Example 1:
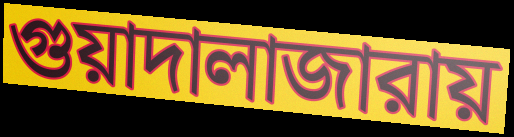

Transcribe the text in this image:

গুয়াদালাজারায়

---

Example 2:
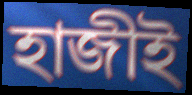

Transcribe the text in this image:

হাজীই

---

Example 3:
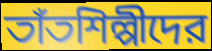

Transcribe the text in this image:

তাঁতশিল্পীদের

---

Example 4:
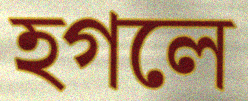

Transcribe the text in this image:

হগলে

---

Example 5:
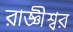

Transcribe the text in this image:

রাজ্ঞীশ্বর